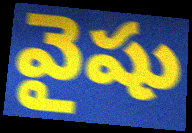
వైషు